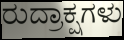
ರುದ್ರಾಕ್ಷಗಳು